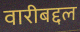
वारीबद्दल